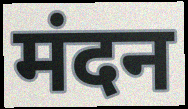
मंदन